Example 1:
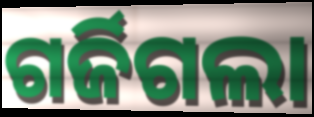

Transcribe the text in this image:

ଗର୍ଜିଗଲା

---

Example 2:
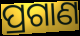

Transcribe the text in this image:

ପ୍ରଗାଣ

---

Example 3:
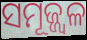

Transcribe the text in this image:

ସମୂଜ୍ଜ୍ୱଳ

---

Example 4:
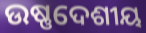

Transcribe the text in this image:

ଉଷ୍ଣଦେଶୀୟ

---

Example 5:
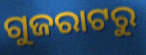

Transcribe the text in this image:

ଗୁଜରାଟରୁ